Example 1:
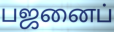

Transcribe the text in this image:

பஜனைப்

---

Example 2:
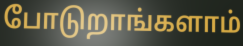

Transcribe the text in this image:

போடுறாங்களாம்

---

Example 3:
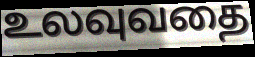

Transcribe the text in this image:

உலவுவதை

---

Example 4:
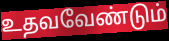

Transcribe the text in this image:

உதவவேண்டும்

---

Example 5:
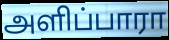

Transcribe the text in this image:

அளிப்பாரா